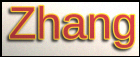
Zhang